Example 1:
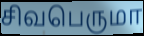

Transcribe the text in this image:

சிவபெருமா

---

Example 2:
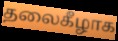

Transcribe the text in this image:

தலைகீழாக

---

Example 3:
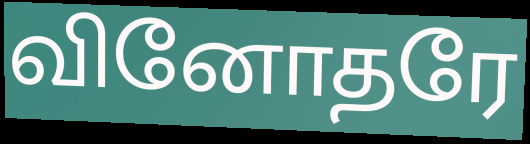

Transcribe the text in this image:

வினோதரே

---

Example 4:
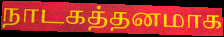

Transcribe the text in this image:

நாடகத்தனமாக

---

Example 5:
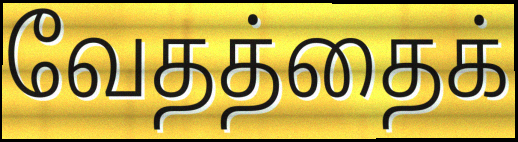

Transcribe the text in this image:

வேதத்தைக்